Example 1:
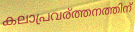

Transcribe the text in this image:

കലാപ്രവര്ത്തനത്തിന്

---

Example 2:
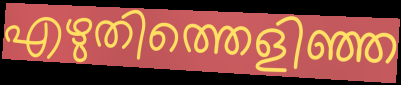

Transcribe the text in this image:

എഴുതിത്തെളിഞ്ഞ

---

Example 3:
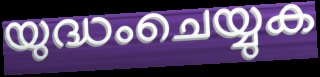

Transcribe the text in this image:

യുദ്ധംചെയ്യുക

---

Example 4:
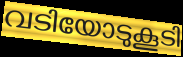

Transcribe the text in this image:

വടിയോടുകൂടി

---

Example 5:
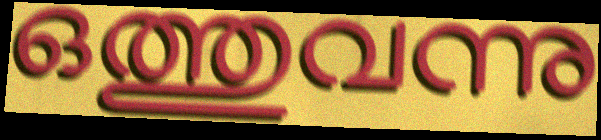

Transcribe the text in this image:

ഒത്തുവന്നു